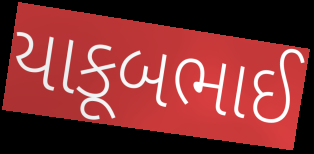
યાકૂબભાઈ